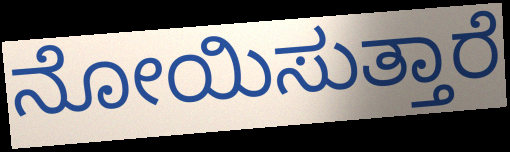
ನೋಯಿಸುತ್ತಾರೆ